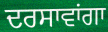
ਦਰਸਾਵਾਂਗਾ